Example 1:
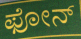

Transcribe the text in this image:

ಫೋನ್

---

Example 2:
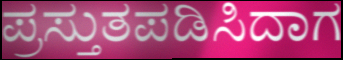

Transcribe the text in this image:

ಪ್ರಸ್ತುತಪಡಿಸಿದಾಗ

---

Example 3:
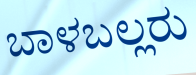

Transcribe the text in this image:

ಬಾಳಬಲ್ಲರು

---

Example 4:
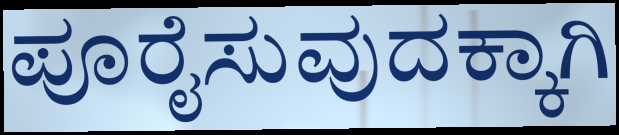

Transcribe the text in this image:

ಪೂರೈಸುವುದಕ್ಕಾಗಿ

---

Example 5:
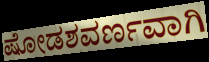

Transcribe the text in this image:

ಷೋಡಶವರ್ಣವಾಗಿ